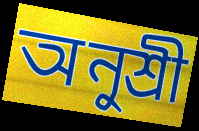
অনুশ্রী